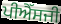
ਪੀਐੱਸਜੀ